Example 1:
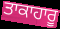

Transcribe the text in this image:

ਤਾਕਾਹਾਰੂ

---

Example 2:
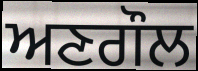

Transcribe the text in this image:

ਅਣਗੌਲ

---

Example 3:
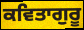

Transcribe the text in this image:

ਕਵਿਤਾਗੁਰੂ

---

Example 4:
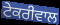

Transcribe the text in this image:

ਟੇਕਰੀਵਾਲ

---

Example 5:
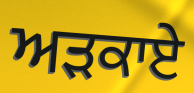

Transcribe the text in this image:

ਅੜਕਾਏ